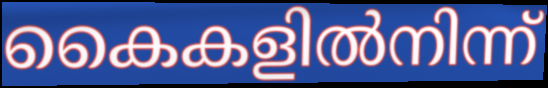
കൈകളിൽനിന്ന്